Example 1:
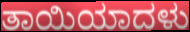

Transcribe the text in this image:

ತಾಯಿಯಾದಳು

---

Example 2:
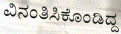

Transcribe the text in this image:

ವಿನಂತಿಸಿಕೊಂಡಿದ್ದ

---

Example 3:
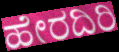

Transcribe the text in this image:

ಹೇರದಿರಿ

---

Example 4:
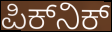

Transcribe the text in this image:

ಪಿಕ್‌ನಿಕ್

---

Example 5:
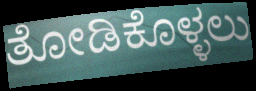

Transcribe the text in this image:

ತೋಡಿಕೊಳ್ಳಲು